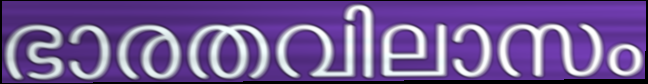
ഭാരതവിലാസം